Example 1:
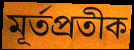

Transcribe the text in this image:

মূর্তপ্রতীক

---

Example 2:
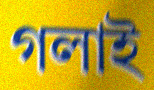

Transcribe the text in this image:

গলাই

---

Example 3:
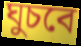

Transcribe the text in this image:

ঘুচবে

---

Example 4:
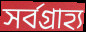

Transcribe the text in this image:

সর্বগ্রাহ্য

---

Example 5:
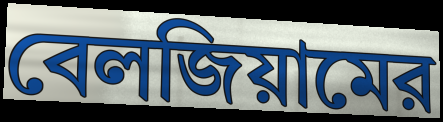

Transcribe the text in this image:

বেলজিয়ামের